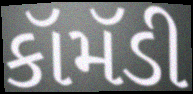
કૉમૅડી